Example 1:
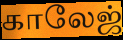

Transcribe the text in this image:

காலேஜ்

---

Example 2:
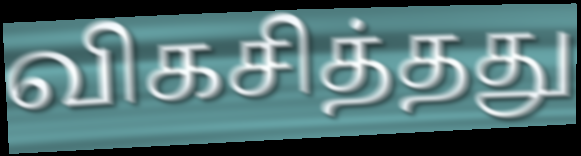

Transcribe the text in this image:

விகசித்தது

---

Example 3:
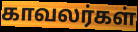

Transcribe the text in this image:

காவலர்கள்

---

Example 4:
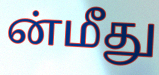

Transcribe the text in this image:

ன்மீது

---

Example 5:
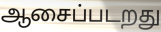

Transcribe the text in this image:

ஆசைப்படறது